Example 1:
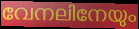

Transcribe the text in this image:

വേനലിനേയും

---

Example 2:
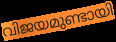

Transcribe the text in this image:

വിജയമുണ്ടായി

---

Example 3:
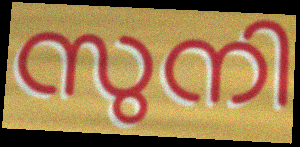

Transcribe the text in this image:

സുനി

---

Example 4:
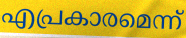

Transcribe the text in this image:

എപ്രകാരമെന്ന്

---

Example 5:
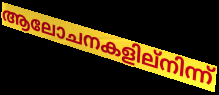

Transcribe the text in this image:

ആലോചനകളില്നിന്ന്